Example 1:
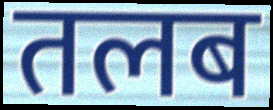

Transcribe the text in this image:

तलब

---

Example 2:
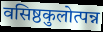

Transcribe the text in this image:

वसिष्ठकुलोत्पन्न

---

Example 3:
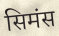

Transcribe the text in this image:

सिमंस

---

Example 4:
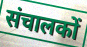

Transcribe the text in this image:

संचालकों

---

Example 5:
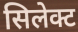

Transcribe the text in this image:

सिलेक्ट